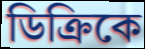
ডিক্রিকে